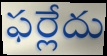
ఫర్లేదు